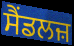
ਸੈਂਡਲਜ਼